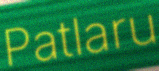
Patlaru